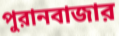
পুরানবাজার